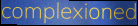
complexioned